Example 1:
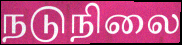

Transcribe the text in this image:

நடுநிலை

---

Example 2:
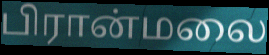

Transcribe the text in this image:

பிரான்மலை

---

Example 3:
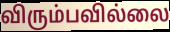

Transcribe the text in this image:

விரும்பவில்லை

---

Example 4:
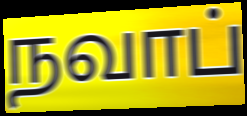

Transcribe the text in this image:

நவாப்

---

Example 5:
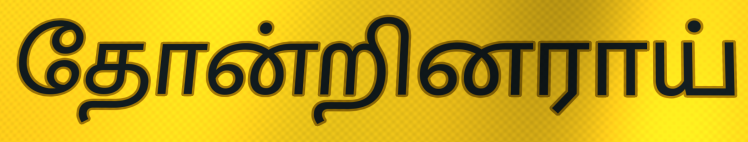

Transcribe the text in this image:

தோன்றினராய்